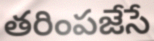
తరింపజేసే